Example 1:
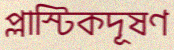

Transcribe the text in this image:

প্লাস্টিকদূষণ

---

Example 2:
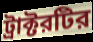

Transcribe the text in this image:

ট্রাক্টরটির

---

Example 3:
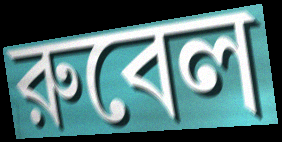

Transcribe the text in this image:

রুবেল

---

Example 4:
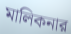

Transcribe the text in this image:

মালিকনার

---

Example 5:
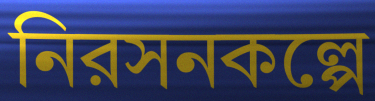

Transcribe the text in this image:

নিরসনকল্পে